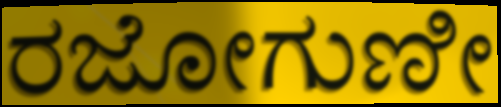
ರಜೋಗುಣೀ